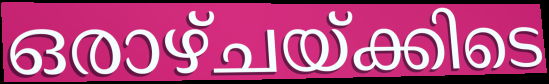
ഒരാഴ്ചയ്ക്കിടെ